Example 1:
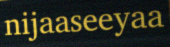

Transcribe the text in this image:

nijaaseeyaa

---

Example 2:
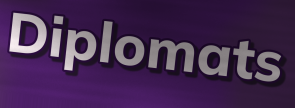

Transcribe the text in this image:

Diplomats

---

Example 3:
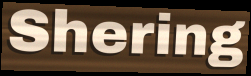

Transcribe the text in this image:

Shering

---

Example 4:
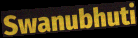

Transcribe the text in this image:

Swanubhuti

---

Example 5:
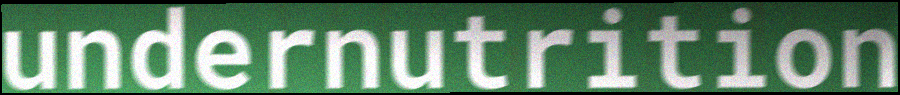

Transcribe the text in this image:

undernutrition